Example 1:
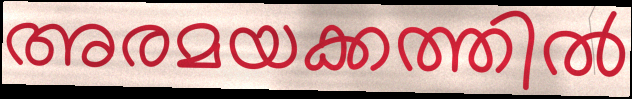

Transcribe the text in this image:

അരമയക്കത്തിൽ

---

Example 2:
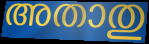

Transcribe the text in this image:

അതാതു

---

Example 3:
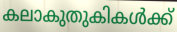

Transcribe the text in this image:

കലാകുതുകികൾക്ക്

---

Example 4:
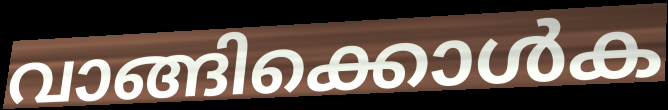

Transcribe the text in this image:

വാങ്ങിക്കൊൾക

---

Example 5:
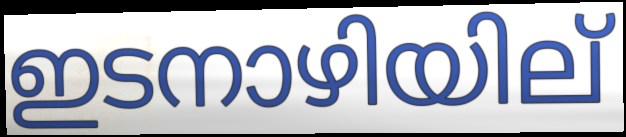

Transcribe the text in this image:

ഇടനാഴിയില്